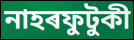
নাহৰফুটুকী